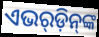
ଏଭର୍‍ଡ଼ିନ୍‌ଙ୍କ